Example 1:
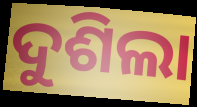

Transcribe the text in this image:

ଦୁଶିଲା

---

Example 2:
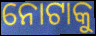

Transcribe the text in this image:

ନୋଟାକୁ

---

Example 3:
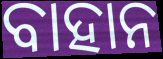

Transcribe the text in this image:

ବାହାନ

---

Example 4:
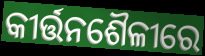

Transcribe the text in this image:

କୀର୍ତ୍ତନଶୈଳୀରେ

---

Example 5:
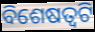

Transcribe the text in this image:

ବିଶେଷତ୍ୱଟି